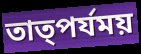
তাত্পর্যময়